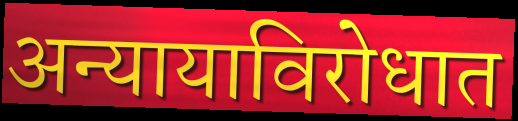
अन्यायाविरोधात